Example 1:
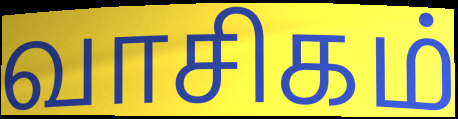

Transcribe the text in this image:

வாசிகம்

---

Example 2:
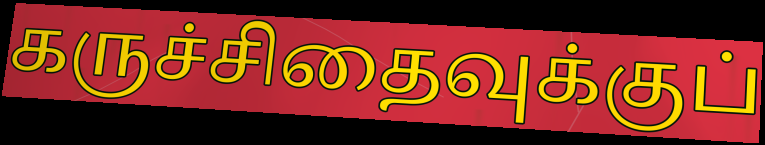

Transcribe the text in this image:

கருச்சிதைவுக்குப்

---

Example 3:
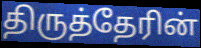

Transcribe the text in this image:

திருத்தேரின்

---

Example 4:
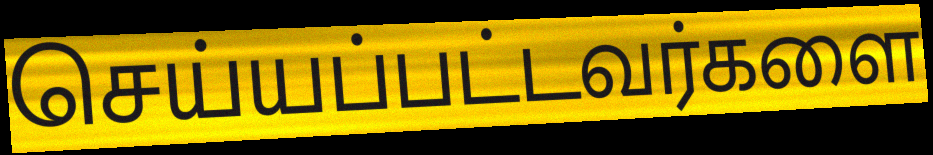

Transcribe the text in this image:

செய்யப்பட்டவர்களை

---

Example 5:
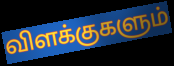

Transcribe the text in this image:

விளக்குகளும்